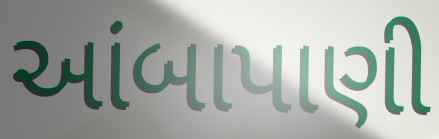
આંબાપાણી